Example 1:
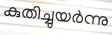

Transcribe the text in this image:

കുതിച്ചുയർന്നു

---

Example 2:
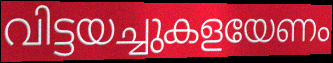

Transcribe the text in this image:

വിട്ടയച്ചുകളയേണം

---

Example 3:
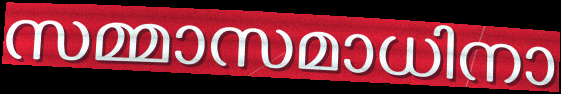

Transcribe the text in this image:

സമ്മാസമാധിനാ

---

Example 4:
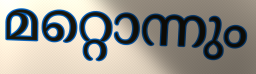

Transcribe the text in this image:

മറ്റൊന്നും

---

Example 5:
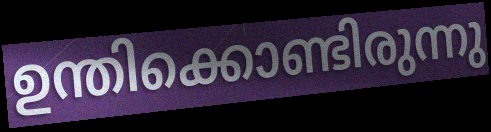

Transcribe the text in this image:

ഉന്തിക്കൊണ്ടിരുന്നു